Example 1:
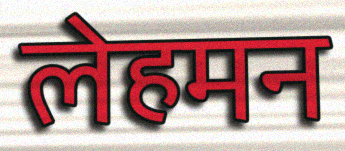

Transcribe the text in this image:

लेहमन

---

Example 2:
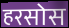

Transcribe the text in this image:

हरसोस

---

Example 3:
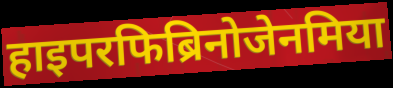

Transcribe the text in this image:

हाइपरफिब्रिनोजेनमिया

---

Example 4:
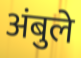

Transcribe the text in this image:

अंबुले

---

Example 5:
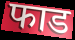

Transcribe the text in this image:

फाड